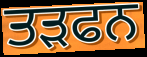
ਤੜਫਨ